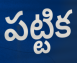
పట్టిక